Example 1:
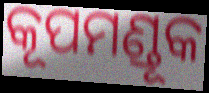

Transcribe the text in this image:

କୂପମଣ୍ଡୂକ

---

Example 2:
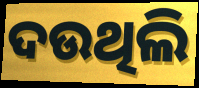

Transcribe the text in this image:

ଦଉଥିଲି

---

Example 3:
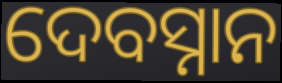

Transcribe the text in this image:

ଦେବସ୍ନାନ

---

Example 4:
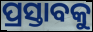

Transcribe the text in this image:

ପ୍ରସ୍ତାବକୁ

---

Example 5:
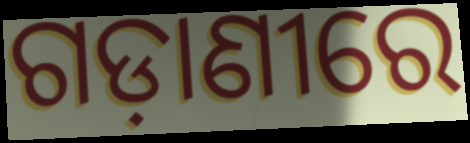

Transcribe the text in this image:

ଗଡ଼ାଣୀରେ